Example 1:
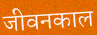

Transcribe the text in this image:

जीवनकाल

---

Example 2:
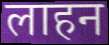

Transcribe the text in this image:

लाहन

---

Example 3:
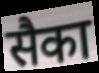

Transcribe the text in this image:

सैका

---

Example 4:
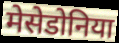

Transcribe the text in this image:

मेसेडोनिया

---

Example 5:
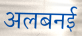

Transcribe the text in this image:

अलबनई